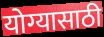
योग्यासाठी